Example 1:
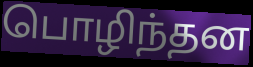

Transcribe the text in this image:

பொழிந்தன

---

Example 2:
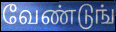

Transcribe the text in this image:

வேண்டுங்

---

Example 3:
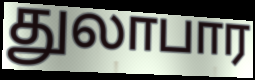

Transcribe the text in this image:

துலாபார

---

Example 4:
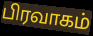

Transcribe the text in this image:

பிரவாகம்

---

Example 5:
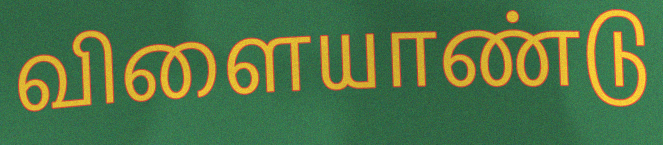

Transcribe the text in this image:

விளையாண்டு